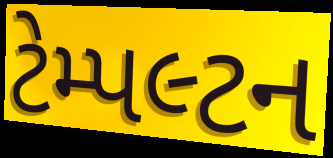
ટેમ્પલ્ટન